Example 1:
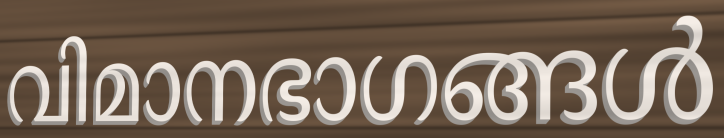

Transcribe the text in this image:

വിമാനഭാഗങ്ങൾ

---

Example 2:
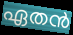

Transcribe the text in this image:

ഏതൻ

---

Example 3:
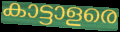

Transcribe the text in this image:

കാട്ടാളരെ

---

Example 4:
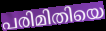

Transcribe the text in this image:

പരിമിതിയെ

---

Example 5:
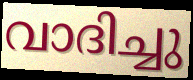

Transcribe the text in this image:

വാദിച്ചു